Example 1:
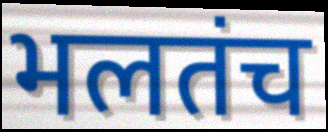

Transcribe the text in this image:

भलतंच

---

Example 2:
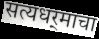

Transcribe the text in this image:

सत्यधर्माचा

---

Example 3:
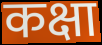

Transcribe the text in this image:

कक्षा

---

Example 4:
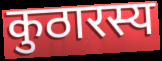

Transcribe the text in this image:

कुठारस्य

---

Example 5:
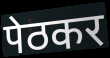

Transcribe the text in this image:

पेठकर